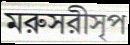
মরুসরীসৃপ